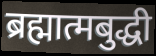
ब्रह्मात्मबुद्धी